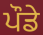
ਪੌਡੇ